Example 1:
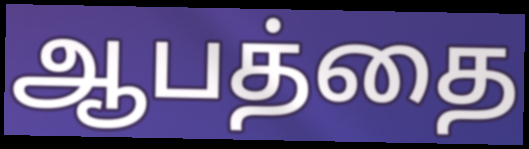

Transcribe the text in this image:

ஆபத்தை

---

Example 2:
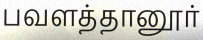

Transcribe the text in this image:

பவளத்தானூர்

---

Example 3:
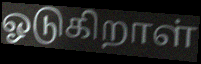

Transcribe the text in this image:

ஓடுகிறாள்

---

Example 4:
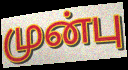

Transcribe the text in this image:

முன்பு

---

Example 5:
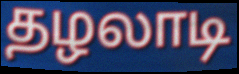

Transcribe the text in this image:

தழலாடி